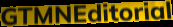
GTMNEditorial